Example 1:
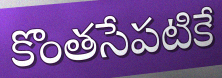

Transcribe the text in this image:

కొంతసేపటికే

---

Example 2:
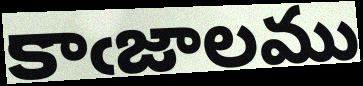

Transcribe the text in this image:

కాఁజాలము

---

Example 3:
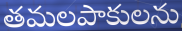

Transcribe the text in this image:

తమలపాకులను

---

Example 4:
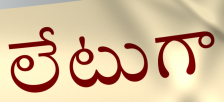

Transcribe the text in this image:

లేటుగా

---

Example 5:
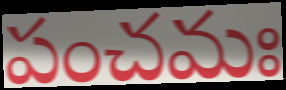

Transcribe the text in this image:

పంచమః